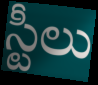
స్టీలు